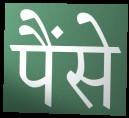
पैंसे